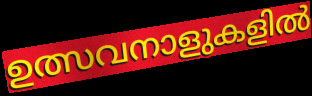
ഉത്സവനാളുകളിൽ